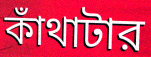
কাঁথাটার